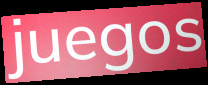
juegos